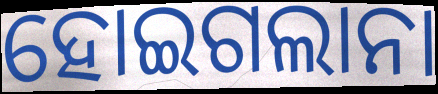
ହୋଇଗଲାନା